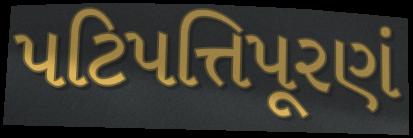
પટિપત્તિપૂરણં